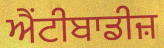
ਐਂਟੀਬਾਡੀਜ਼